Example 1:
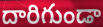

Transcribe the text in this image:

దారిగుండా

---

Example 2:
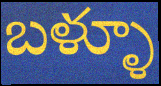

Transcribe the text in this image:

బళ్ళూ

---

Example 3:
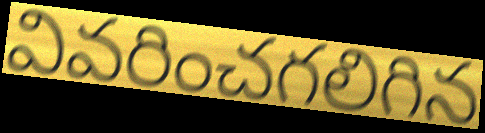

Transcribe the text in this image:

వివరించగలిగిన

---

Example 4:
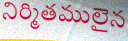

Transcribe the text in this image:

నిర్మితములైన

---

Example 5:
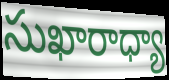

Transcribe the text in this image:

సుఖారాధ్యా